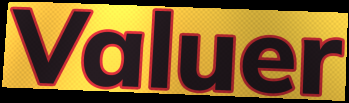
Valuer